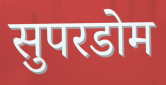
सुपरडोम